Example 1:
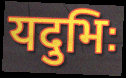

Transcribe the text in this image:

यदुभिः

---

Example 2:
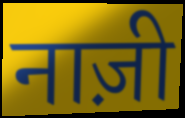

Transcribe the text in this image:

नाज़ी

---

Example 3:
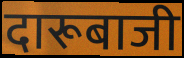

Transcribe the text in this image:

दारूबाजी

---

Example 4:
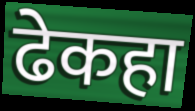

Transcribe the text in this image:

ढेकहा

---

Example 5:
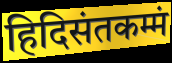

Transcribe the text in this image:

हिदिसंतकम्मं